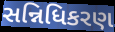
સન્નિધિકરણ